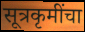
सूत्रकृमींचा